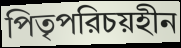
পিতৃপরিচয়হীন